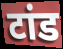
टांड